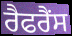
ਰੈਫਰੈਂਸ